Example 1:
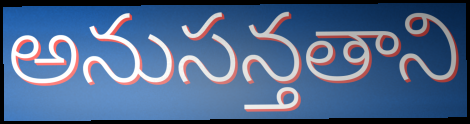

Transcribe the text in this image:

అనుసన్తతాని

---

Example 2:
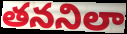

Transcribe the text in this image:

తననిలా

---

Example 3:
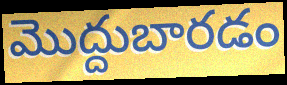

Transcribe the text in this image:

మొద్దుబారడం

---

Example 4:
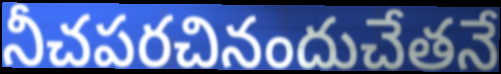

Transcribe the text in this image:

నీచపరచినందుచేతనే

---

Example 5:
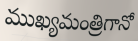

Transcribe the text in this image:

ముఖ్యమంత్రిగానో